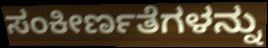
ಸಂಕೀರ್ಣತೆಗಳನ್ನು